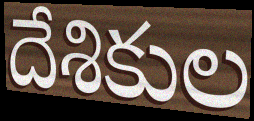
దేశికుల